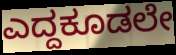
ಎದ್ದಕೂಡಲೇ